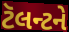
ટૅલન્ટને